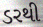
ડરથી